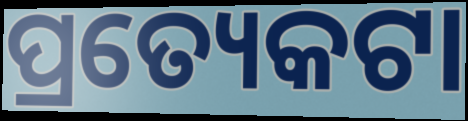
ପ୍ରତ୍ୟେକଟା